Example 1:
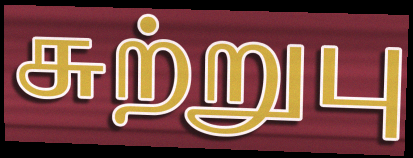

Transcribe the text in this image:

சுற்றுபு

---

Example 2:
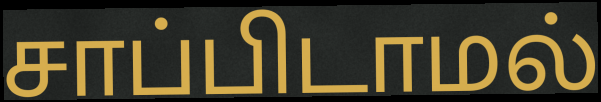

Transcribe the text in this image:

சாப்பிடாமல்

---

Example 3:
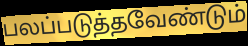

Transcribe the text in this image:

பலப்படுத்தவேண்டும்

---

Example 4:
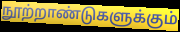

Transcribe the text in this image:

நூற்றாண்டுகளுக்கும்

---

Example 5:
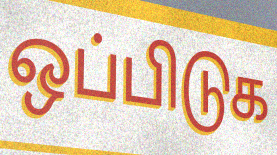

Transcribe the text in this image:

ஒப்பிடுக